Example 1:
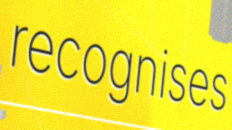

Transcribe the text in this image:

recognises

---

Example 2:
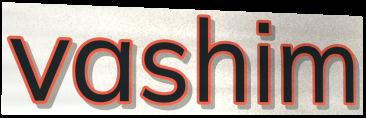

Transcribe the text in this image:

vashim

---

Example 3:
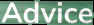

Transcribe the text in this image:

Advice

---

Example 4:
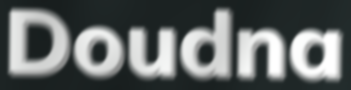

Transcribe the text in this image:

Doudna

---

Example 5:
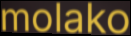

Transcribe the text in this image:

molako